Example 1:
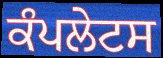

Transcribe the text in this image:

ਕੰਪਲੇਟਸ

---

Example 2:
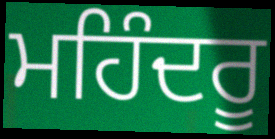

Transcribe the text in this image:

ਮਹਿੰਦਰੂ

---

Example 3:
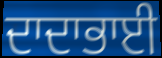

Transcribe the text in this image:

ਦਾਦਾਭਾਈ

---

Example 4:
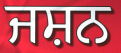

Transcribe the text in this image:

ਜਸ਼ਨ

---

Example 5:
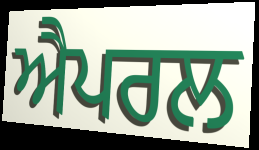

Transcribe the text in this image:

ਐਪਰਲ